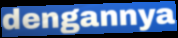
dengannya